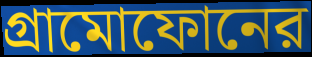
গ্রামোফোনের